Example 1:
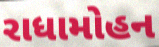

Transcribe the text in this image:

રાધામોહન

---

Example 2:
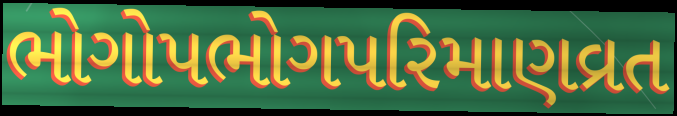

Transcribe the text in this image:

ભોગોપભોગપરિમાણવ્રત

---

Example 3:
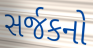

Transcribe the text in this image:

સર્જકનો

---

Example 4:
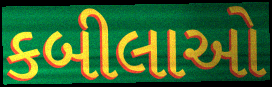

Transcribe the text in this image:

કબીલાઓ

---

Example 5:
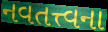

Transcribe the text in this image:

નવતત્ત્વના